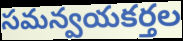
సమన్వయకర్తల